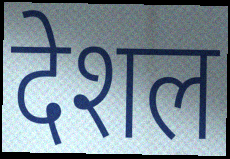
देशल